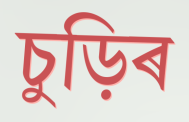
চুড়িৰ